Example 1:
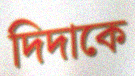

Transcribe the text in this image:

দিদাকে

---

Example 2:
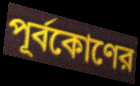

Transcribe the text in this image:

পূর্বকোণের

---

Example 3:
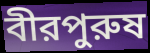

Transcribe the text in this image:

বীরপুরুষ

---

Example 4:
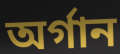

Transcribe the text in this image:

অর্গান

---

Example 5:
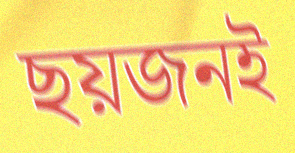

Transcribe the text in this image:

ছয়জনই